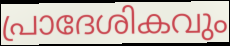
പ്രാദേശികവും